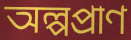
অল্পপ্ৰাণ